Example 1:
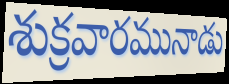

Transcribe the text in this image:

శుక్రవారమునాడు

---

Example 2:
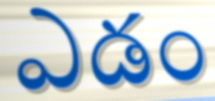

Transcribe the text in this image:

ఎడం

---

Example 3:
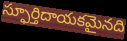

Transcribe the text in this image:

స్ఫూర్తిదాయకమైనది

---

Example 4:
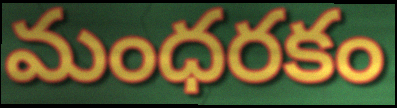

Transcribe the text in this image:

మంధరకం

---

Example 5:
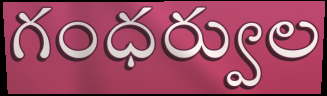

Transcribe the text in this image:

గంధర్వుల